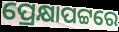
ପ୍ରେକ୍ଷାପଟ୍ଟରେ